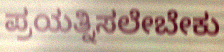
ಪ್ರಯತ್ನಿಸಲೇಬೇಕು